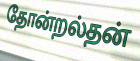
தோன்றல்தன்